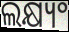
ଲକ୍ଷ୍ୟଂ